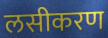
लसीकरण